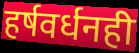
हर्षवर्धनही